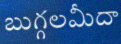
బుగ్గలమీదా